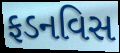
ફડનવિસ